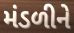
મંડળીને